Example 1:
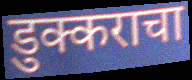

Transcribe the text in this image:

डुक्कराचा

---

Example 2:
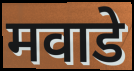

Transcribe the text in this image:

मवाडे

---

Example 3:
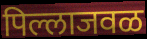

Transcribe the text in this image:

पिल्लाजवळ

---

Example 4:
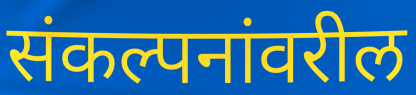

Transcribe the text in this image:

संकल्पनांवरील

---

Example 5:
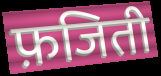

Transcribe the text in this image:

फ़जिती